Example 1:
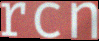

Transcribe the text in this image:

rcn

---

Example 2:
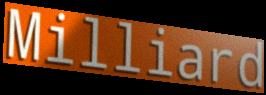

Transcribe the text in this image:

Milliard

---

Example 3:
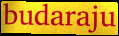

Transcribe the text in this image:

budaraju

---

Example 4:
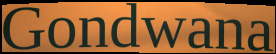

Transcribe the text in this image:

Gondwana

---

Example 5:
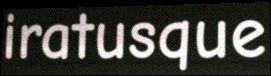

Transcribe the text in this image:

iratusque